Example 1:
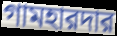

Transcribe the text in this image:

গামহারদার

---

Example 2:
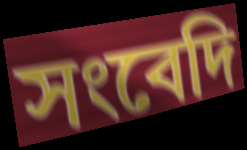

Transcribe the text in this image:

সংবেদি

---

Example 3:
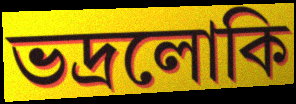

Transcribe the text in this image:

ভদ্রলোকি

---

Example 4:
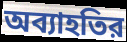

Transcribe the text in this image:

অব্যাহতির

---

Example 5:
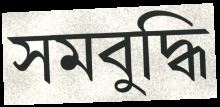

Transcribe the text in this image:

সমবুদ্ধি